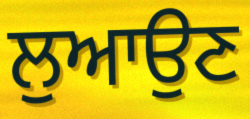
ਲੁਆਉਣ